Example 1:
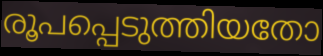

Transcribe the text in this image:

രൂപപ്പെടുത്തിയതോ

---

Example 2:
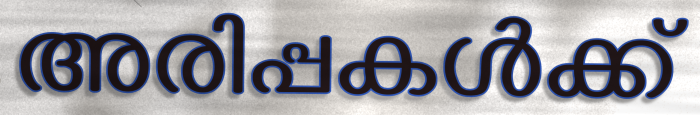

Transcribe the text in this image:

അരിപ്പകൾക്ക്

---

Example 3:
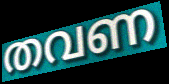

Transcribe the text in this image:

തവണ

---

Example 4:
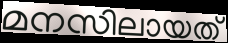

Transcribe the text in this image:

മനസിലായത്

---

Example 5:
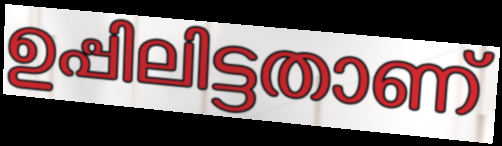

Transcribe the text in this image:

ഉപ്പിലിട്ടതാണ്